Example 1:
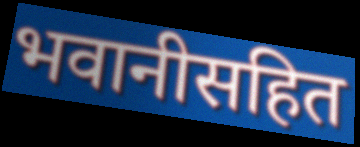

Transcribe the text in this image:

भवानीसहित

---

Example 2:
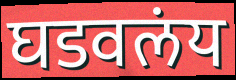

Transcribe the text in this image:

घडवलंय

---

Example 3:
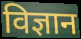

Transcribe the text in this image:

विज्ञान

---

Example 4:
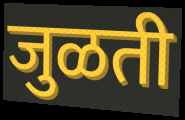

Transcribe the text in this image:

जुळती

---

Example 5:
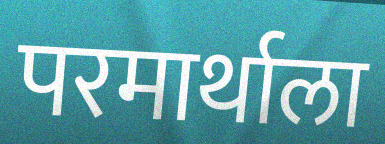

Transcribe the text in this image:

परमार्थाला